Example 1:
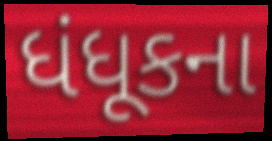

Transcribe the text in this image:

ધંધૂકના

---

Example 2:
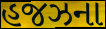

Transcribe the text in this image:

હજઝના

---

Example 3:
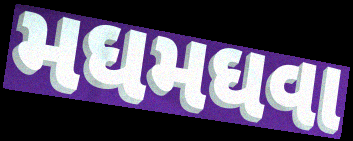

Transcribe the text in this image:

મઘમઘવા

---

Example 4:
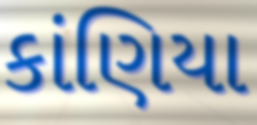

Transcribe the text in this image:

કાંણિયા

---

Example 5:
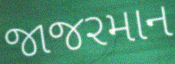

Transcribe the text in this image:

જાજરમાન